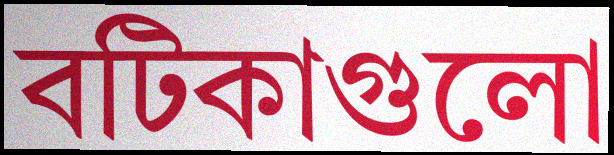
বটিকাগুলো